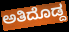
ಅತಿದೊಡ್ದ